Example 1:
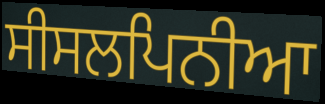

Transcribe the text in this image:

ਸੀਸਲਪਿਨੀਆ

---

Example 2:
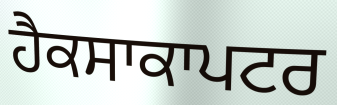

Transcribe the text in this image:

ਹੈਕਸਾਕਾਪਟਰ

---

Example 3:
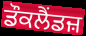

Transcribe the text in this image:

ਡੌਕਲੈਂਡਜ਼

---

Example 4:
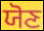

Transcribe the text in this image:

ਯੋਣ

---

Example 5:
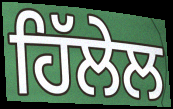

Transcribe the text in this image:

ਹਿੱਲੇਲ